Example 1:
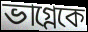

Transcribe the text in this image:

ভাগ্নেকে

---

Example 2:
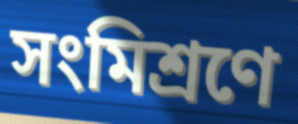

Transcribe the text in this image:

সংমিশ্রণে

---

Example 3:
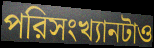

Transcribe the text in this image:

পরিসংখ্যানটাও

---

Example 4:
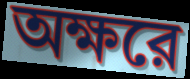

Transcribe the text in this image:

অক্ষরে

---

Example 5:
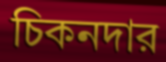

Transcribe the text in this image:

চিকনদার